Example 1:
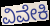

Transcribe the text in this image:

ವಿವೇಕಿ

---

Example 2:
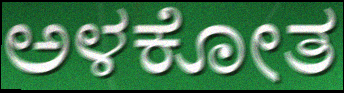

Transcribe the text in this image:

ಅಳಕೋತ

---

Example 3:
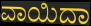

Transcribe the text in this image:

ವಾಯಿದಾ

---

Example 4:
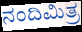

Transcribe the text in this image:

ನಂದಿಮಿತ್ರ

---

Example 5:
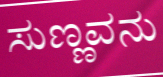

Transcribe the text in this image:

ಸುಣ್ಣವನು